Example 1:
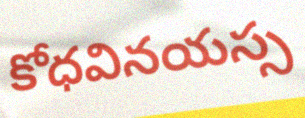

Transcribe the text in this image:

కోధవినయస్స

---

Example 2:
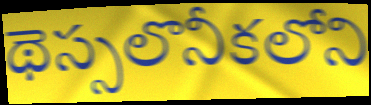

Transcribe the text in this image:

థెస్సలొనీకలోని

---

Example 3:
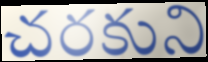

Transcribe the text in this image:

చరకుని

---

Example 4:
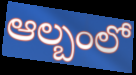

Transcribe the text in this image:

ఆల్బంలో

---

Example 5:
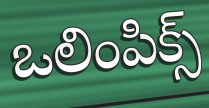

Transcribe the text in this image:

ఒలింపిక్స్